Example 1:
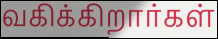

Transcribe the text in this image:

வகிக்கிறார்கள்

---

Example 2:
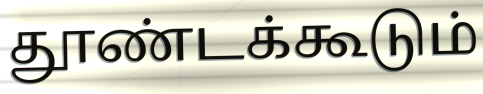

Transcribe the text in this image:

தூண்டக்கூடும்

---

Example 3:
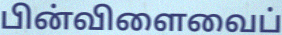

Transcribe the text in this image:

பின்விளைவைப்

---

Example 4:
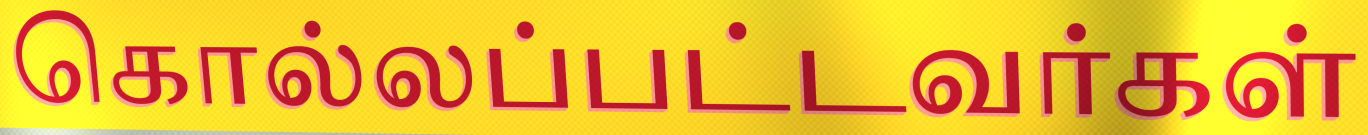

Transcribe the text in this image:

கொல்லப்பட்டவர்கள்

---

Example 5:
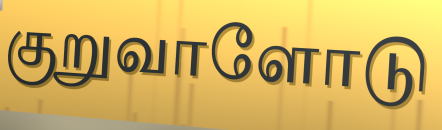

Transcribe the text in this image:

குறுவாளோடு